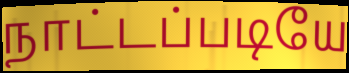
நாட்டப்படியே